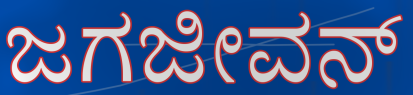
ಜಗಜೀವನ್